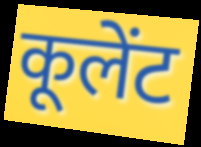
कूलेंट